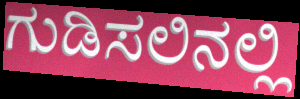
ಗುಡಿಸಲಿನಲ್ಲಿ